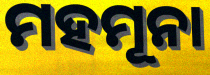
ମହମୂନା